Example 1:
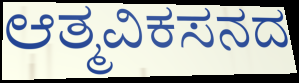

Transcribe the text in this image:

ಆತ್ಮವಿಕಸನದ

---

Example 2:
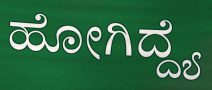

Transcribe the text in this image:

ಹೋಗಿದ್ದ್ಯೆ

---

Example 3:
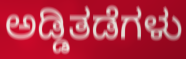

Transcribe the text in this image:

ಅಡ್ಡಿತಡೆಗಳು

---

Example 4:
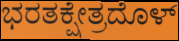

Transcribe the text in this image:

ಭರತಕ್ಷೇತ್ರದೊಳ್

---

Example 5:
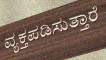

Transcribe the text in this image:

ವ್ಯಕ್ತಪಡಿಸುತ್ತಾರೆ